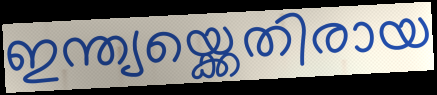
ഇന്ത്യയ്ക്കെതിരായ